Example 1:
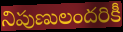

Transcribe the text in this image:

నిపుణులందరికీ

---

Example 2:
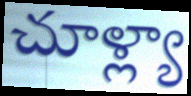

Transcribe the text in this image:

చూళ్ల్యా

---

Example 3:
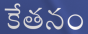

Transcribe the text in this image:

కేతనం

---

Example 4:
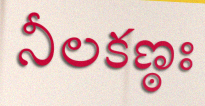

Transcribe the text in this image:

నీలకణ్ఠః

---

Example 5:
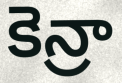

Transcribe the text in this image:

కెన్రా